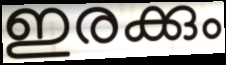
ഇരക്കും